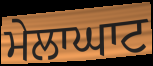
ਮੇਲਾਘਾਟ